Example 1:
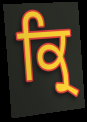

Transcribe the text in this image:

ਕ੍ਰਿ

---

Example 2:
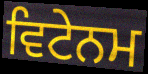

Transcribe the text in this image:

ਵਿਟੇਨਮ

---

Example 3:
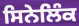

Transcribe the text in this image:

ਸਿਨੇਲਿੰਕ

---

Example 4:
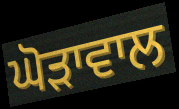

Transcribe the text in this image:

ਘੋੜਾਵਾਲ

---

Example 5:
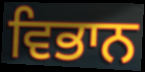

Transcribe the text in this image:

ਵਿਭਾਨ